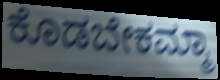
ಕೊಡಬೇಕಮ್ಮಾ